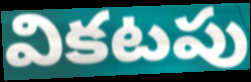
వికటపు